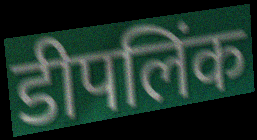
डीपलिंक